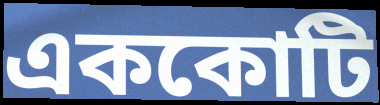
এককোটি